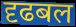
दृढबल